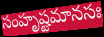
సంహృష్టమానసః